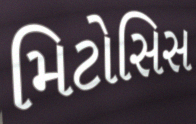
મિટોસિસ